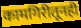
कामगिरीतूनही